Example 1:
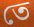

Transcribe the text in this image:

তে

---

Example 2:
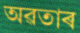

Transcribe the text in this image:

অৱতাৰ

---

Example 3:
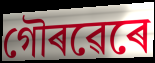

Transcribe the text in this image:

গৌৰৱেৰে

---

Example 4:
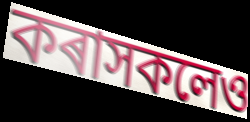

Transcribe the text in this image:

কৰাসকলেও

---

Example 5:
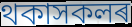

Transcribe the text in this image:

থকাসকলৰ